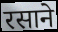
रसाने